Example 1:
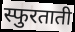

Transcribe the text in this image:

स्फुरताती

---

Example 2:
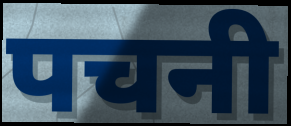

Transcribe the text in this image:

पचनी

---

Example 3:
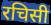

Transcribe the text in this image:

रचिसी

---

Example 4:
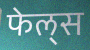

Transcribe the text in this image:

फेल्स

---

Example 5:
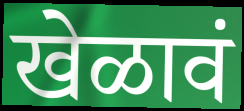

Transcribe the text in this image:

खेळावं